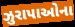
ઝુરાપાઓના